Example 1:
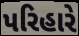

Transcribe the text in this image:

પરિહારે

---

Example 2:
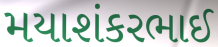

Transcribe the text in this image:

મયાશંકરભાઈ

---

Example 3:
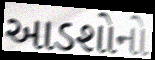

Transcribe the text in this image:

આડશોનો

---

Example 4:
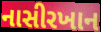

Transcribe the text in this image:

નાસીરખાન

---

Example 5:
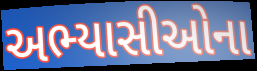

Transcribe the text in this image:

અભ્યાસીઓના